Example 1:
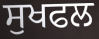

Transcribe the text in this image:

ਸੁਖਫਲ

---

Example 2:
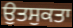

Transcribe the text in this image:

ਉਤਸੁਕਤਾ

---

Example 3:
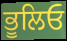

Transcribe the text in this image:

ਭੂਲਿਓ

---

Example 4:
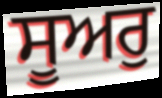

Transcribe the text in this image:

ਸੂਅਰੁ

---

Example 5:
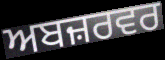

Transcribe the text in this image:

ਅਬਜ਼ਰਵਰ